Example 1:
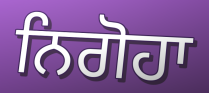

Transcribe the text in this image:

ਨਿਗੋਹਾ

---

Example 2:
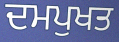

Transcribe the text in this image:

ਦਮਪੁਖਤ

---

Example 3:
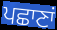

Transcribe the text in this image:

ਪਛਾਣਾਂ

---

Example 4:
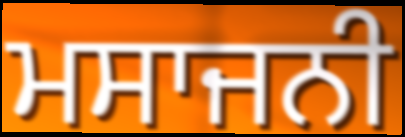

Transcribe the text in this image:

ਮਸਾਜਨੀ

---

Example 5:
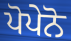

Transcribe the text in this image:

ਪੋਪੇਨੋ